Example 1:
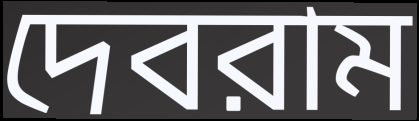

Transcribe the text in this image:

দেবরাম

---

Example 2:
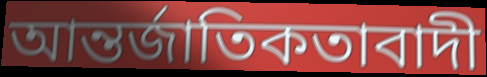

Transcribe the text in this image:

আন্তর্জাতিকতাবাদী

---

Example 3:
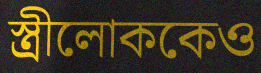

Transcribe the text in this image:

স্ত্রীলোককেও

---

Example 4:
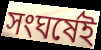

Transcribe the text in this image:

সংঘর্ষেই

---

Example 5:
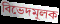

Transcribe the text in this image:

বিভেদমূলক